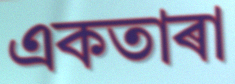
একতাৰা